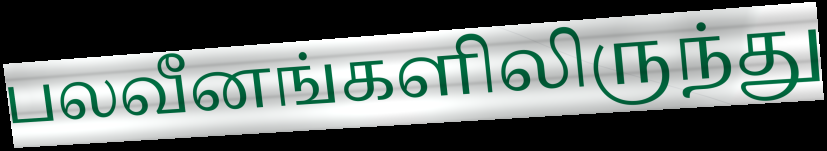
பலவீனங்களிலிருந்து